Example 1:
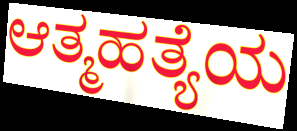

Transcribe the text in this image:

ಆತ್ಮಹತ್ಯೆಯ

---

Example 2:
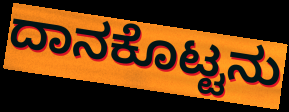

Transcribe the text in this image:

ದಾನಕೊಟ್ಟನು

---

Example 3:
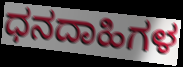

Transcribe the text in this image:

ಧನದಾಹಿಗಳ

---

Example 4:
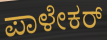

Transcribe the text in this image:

ಪಾಳೇಕರ್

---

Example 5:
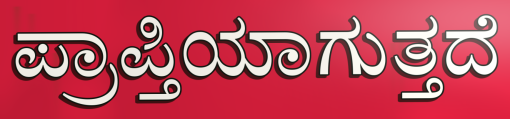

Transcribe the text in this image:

ಪ್ರಾಪ್ತಿಯಾಗುತ್ತದೆ